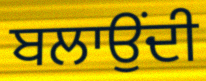
ਬਲਾਉਂਦੀ